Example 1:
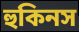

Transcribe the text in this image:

হুকিনস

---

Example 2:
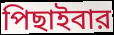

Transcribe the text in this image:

পিছাইবার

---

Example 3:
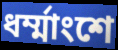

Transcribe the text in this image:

ধর্ম্মাংশে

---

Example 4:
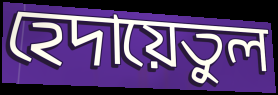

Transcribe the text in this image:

হেদায়েতুল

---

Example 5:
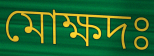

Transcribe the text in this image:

মোক্ষদঃ